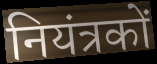
नियंत्रकों